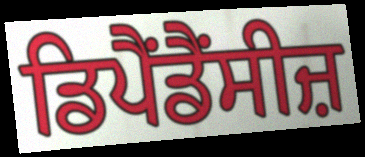
ਡਿਪੈਂਡੈਂਸੀਜ਼